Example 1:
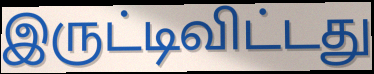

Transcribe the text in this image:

இருட்டிவிட்டது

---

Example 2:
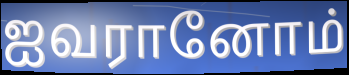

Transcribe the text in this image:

ஐவரானோம்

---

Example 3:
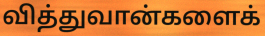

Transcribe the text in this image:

வித்துவான்களைக்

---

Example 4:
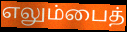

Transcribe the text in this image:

எலும்பைத்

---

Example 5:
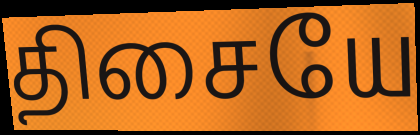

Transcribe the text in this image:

திசையே